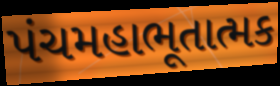
પંચમહાભૂતાત્મક